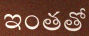
ఇంతతో